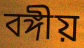
বঙ্গীয়